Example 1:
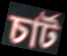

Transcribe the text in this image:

চার্ট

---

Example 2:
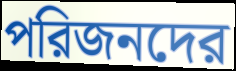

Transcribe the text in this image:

পরিজনদের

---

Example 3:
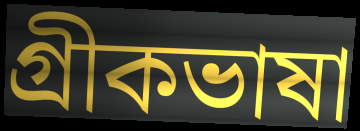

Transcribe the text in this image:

গ্রীকভাষা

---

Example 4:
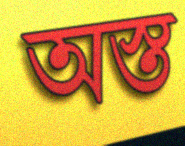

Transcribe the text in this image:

অস্ত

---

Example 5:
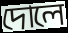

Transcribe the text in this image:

দোলে